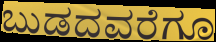
ಬುಡದವರೆಗೂ